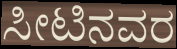
ಸೀಟಿನವರ